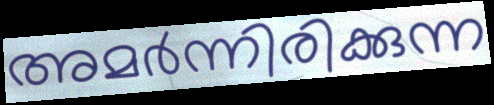
അമർന്നിരിക്കുന്ന